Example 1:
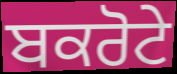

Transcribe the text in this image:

ਬਕਰੋਟੇ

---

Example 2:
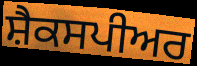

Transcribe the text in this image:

ਸ਼ੈਕਸਪੀਅਰ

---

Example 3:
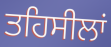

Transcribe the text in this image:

ਤਹਿਸੀਲਾਂ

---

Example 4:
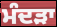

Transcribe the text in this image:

ਮੰਦੜਾ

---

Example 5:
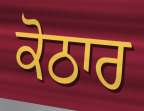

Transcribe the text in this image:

ਕੋਠਾਰ